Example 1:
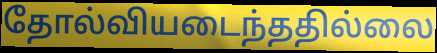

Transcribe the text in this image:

தோல்வியடைந்ததில்லை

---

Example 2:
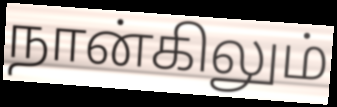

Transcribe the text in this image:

நான்கிலும்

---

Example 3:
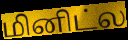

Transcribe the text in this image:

மினிட்ல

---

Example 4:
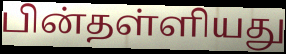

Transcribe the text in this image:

பின்தள்ளியது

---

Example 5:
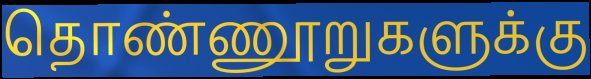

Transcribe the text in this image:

தொண்ணூறுகளுக்கு